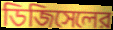
ডিজিসেলের